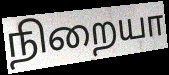
நிறையா